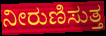
ನೀರುಣಿಸುತ್ತ